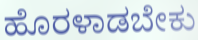
ಹೊರಳಾಡಬೇಕು